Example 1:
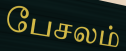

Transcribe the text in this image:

பேசலம்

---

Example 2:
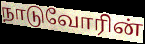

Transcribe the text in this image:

நாடுவோரின்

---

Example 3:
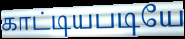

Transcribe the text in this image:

காட்டியபடியே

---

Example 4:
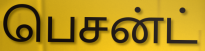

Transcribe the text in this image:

பெசன்ட்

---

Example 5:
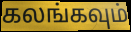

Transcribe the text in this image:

கலங்கவும்